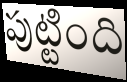
పుట్టింది